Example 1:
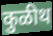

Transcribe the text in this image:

कुळीथ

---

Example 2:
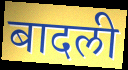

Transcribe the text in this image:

बादली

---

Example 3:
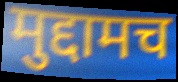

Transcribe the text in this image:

मुद्दामच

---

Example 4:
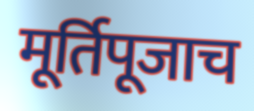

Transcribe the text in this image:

मूर्तिपूजाच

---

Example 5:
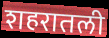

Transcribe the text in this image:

शहरातली